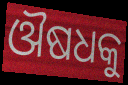
ଔଷଧକୁ